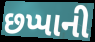
છપ્પાની